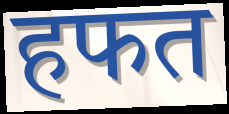
हफत